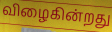
விழைகின்றது